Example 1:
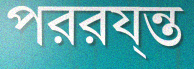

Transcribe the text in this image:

পররয্ন্ত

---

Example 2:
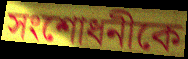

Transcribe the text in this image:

সংশোধনীকে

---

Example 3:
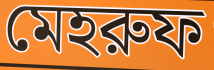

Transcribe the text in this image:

মেহরুফ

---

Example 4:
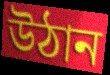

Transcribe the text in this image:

উঠান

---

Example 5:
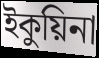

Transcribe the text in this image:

ইকুয়িনা